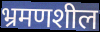
भ्रमणशील